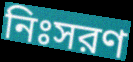
নিঃসরণ